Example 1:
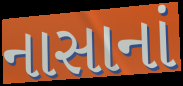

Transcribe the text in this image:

નાસાનાં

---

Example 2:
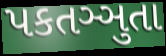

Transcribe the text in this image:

પકતઞ્ઞુતા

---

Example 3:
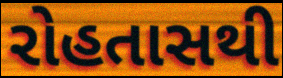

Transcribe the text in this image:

રોહતાસથી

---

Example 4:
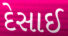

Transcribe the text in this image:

દેસાઈ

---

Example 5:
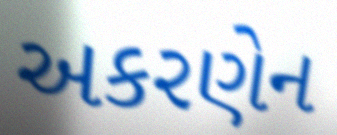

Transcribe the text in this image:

અકરણેન